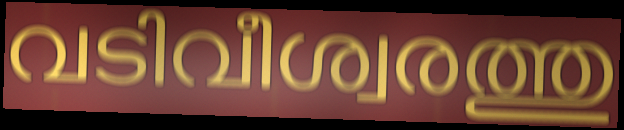
വടിവീശ്വരത്തു